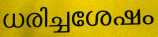
ധരിച്ചശേഷം